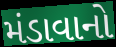
મંડાવાનો